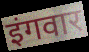
इंगवार